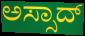
ಅಸ್ಸಾದ್